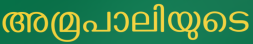
അമ്രപാലിയുടെ